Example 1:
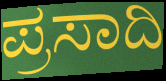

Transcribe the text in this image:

ಪ್ರಸಾದಿ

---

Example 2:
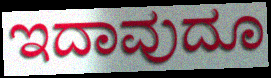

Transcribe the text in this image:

ಇದಾವುದೂ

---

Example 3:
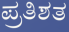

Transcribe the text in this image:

ಪ್ರತಿಶತ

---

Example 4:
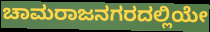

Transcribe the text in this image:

ಚಾಮರಾಜನಗರದಲ್ಲಿಯೇ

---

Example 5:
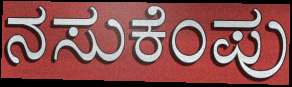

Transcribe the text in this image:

ನಸುಕೆಂಪು